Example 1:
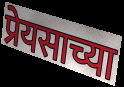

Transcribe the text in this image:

प्रेयसाच्या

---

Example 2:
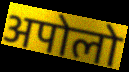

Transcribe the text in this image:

अपोलो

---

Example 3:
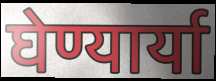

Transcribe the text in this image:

घेण्यार्या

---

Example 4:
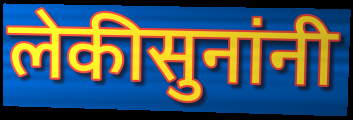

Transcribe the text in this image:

लेकीसुनांनी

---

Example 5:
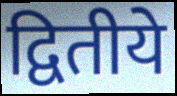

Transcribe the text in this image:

द्वितीये